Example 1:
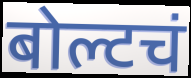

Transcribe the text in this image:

बोल्टचं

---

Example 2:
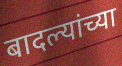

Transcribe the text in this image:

बादल्यांच्या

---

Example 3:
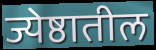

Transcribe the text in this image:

ज्येष्ठातील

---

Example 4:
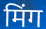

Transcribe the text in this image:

मिंग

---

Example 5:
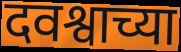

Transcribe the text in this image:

दवश्वाच्या